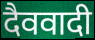
दैववादी